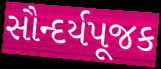
સૌન્દર્યપૂજક